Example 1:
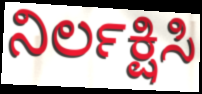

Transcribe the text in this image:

ನಿರ್ಲಕ್ಷಿಸಿ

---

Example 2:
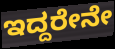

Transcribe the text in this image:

ಇದ್ದರೇನೇ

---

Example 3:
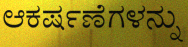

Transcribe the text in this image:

ಆಕರ್ಷಣೆಗಳನ್ನು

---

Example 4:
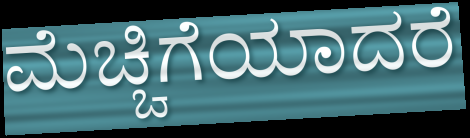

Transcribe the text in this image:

ಮೆಚ್ಚಿಗೆಯಾದರೆ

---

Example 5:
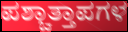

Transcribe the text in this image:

ಪಶ್ಚಾತ್ತಾಪಗಳ